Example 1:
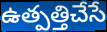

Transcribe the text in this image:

ఉత్పత్తిచేసే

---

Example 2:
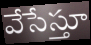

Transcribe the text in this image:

వేసేస్తూ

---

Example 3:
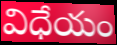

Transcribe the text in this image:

విధేయం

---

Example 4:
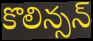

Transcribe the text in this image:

కొలిన్సన్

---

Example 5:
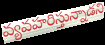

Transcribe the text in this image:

వ్యవహరిస్తున్నాడని